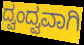
ದ್ವಂದ್ವವಾಗಿ